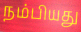
நம்பியது